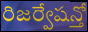
రిజర్వేషన్తో